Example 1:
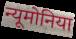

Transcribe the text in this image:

न्यूमोनिया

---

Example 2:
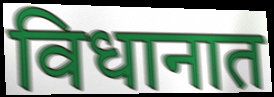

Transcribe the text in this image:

विधानात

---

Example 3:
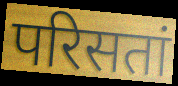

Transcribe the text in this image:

परिसतां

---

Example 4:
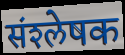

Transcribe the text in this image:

संश्लेषक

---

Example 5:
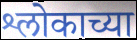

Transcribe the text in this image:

श्लोकाच्या